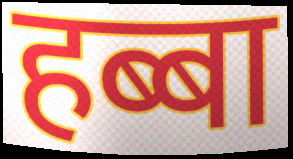
हब्‍बा